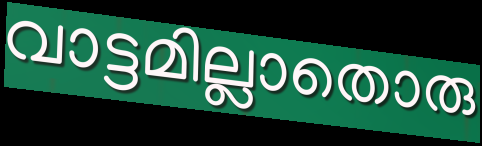
വാട്ടമില്ലാതൊരു